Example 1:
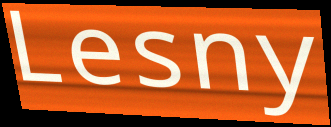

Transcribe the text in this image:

Lesny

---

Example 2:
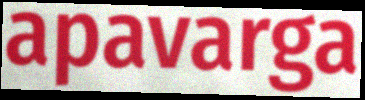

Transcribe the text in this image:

apavarga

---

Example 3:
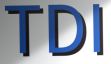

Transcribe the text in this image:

TDI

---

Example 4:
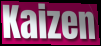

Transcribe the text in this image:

Kaizen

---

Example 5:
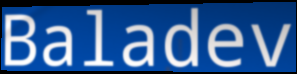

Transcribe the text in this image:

Baladev